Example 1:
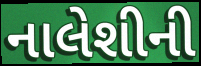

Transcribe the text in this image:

નાલેશીની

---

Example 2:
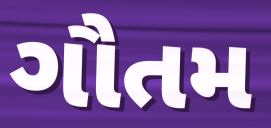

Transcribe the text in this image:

ગૌતમ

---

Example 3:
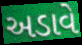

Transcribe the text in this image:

અડાવે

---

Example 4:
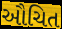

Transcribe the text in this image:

ઔચિત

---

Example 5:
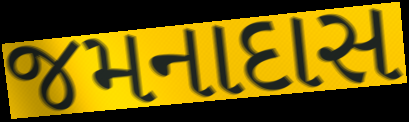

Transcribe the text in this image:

જમનાદાસ